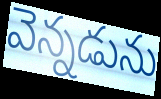
వెన్నడును